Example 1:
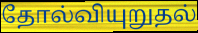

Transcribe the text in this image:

தோல்வியுறுதல்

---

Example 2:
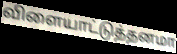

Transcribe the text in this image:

விளையாட்டுத்தனமா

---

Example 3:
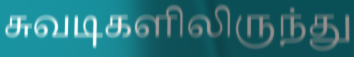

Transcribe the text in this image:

சுவடிகளிலிருந்து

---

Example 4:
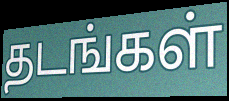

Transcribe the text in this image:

தடங்கள்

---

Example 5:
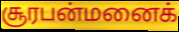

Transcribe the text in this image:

சூரபன்மனைக்